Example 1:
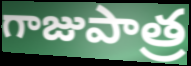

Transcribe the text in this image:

గాజుపాత్ర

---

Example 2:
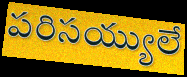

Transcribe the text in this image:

పరిసయ్యులే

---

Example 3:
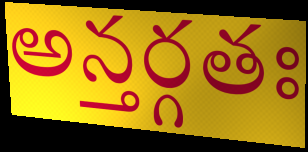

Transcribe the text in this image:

అన్తర్గతః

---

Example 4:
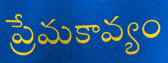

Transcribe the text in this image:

ప్రేమకావ్యం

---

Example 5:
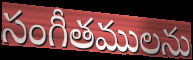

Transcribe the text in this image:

సంగీతములను